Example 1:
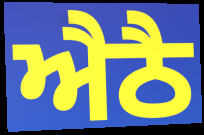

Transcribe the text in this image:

ਐਠੈ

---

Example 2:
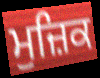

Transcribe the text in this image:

ਮੁਜ਼ਿਕ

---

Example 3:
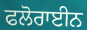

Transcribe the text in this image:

ਫਲੋਰਾਈਨ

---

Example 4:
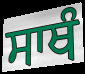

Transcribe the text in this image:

ਸਾਥੰ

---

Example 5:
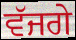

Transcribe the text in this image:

ਵੱਜਗੇ